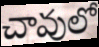
చావులో